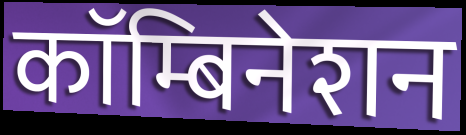
कॉम्बिनेशन